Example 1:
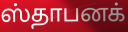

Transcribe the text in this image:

ஸ்தாபனக்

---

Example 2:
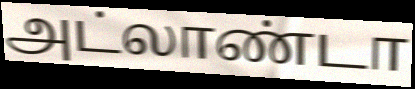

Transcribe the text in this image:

அட்லாண்டா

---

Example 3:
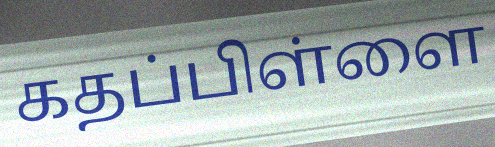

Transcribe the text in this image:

கதப்பிள்ளை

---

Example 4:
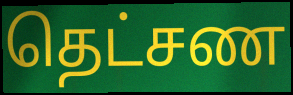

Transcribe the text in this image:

தெட்சண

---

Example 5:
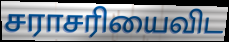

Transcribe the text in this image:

சராசரியைவிட